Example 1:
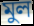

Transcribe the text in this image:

মুল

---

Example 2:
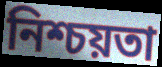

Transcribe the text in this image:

নিশ্চয়তা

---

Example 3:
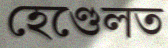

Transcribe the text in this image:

হেণ্ডেলত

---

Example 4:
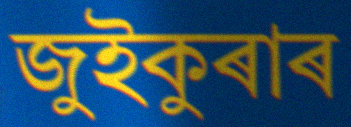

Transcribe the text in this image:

জুইকুৰাৰ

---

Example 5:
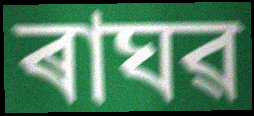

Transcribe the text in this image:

ৰাঘৱ